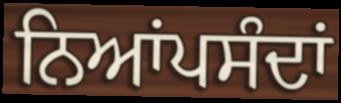
ਨਿਆਂਪਸੰਦਾਂ